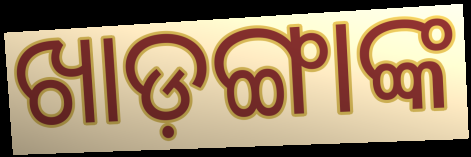
ଖାଡ଼ଙ୍ଗାଙ୍କ